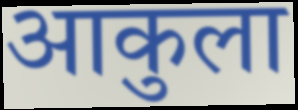
आकुला